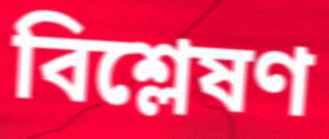
বিশ্লেষণ